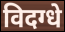
विदग्धे